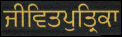
ਜੀਵਿਤਪੁਤ੍ਰਿਕਾ